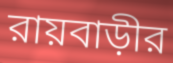
রায়বাড়ীর